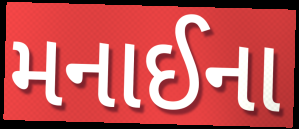
મનાઈના